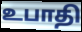
உபாதி